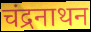
चंद्रनाथन